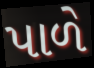
પાળે